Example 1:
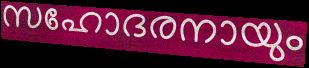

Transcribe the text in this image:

സഹോദരനായും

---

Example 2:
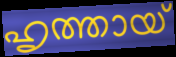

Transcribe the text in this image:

ഹൃത്തായ്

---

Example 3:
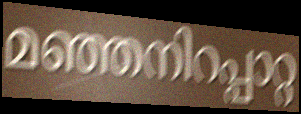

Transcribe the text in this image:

മഞ്ഞനിറപ്പാറ്റ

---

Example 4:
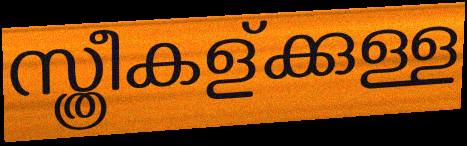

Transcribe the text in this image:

സ്ത്രീകള്ക്കുള്ള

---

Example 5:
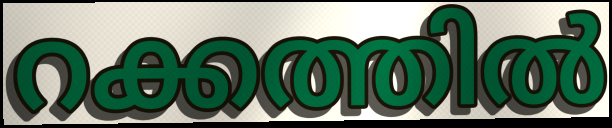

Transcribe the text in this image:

റക്കത്തിൽ